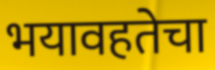
भयावहतेचा